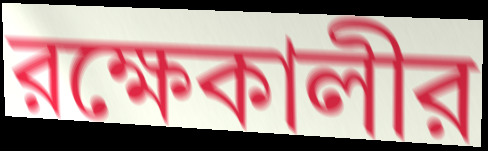
রক্ষেকালীর